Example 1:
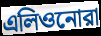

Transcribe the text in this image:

এলিওনোরা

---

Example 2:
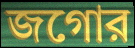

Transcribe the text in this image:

জগোর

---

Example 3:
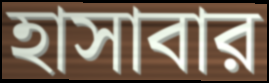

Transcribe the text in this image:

হাসাবার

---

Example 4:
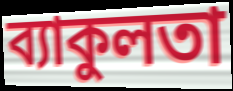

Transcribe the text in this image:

ব্যাকুলতা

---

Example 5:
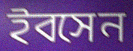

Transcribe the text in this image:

ইবসেন